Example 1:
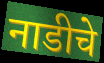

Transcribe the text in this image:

नाडीचे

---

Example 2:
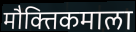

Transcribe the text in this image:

मौक्तिकमाला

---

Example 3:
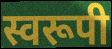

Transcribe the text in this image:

स्वरूपी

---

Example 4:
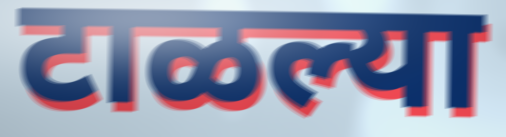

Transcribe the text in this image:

टाळल्या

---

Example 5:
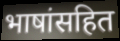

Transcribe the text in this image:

भाषांसहित